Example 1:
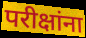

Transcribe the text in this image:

परीक्षांना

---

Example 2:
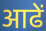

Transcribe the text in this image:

आढें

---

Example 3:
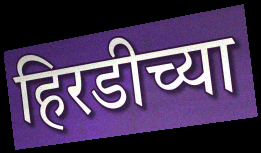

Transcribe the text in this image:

हिरडीच्या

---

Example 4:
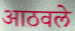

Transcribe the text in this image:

आठवले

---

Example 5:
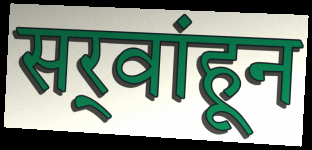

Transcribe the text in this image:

सर्वांहून